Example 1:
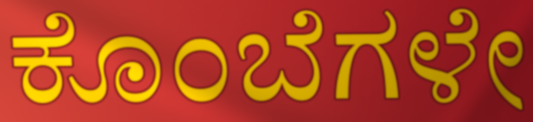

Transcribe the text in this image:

ಕೊಂಬೆಗಳೇ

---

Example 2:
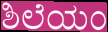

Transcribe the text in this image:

ಶಿಲೆಯಂ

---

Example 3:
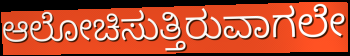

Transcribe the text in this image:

ಆಲೋಚಿಸುತ್ತಿರುವಾಗಲೇ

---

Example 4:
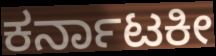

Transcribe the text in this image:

ಕರ್ನಾಟಕೀ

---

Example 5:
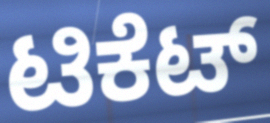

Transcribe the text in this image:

ಟಿಕೆಟ್